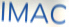
IMAC